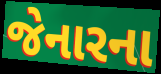
જેનારના